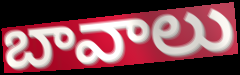
బావాలు